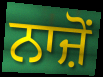
ਨਾਜ਼ੋਂ